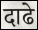
दाढे